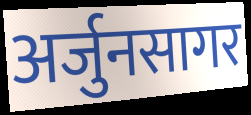
अर्जुनसागर